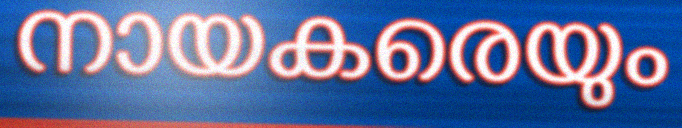
നായകരെയും